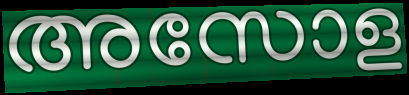
അസോള